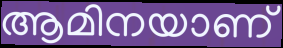
ആമിനയാണ്